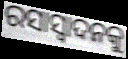
ରସାସ୍ୱାଦନକୁ